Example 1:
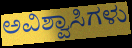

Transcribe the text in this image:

ಅವಿಶ್ವಾಸಿಗಳು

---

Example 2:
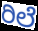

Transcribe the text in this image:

ರಿಲೆ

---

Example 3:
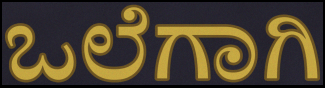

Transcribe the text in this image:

ಒಲೆಗಾಗಿ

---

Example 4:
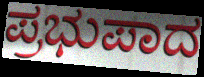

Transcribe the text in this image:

ಪ್ರಭುಪಾದ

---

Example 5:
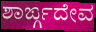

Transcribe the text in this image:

ಶಾರ್ಙ್ಗದೇವ